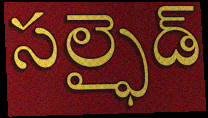
సల్ఫైడ్